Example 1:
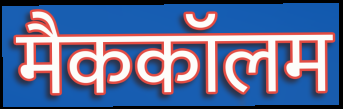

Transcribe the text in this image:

मैककॉलम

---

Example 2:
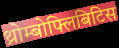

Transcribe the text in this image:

थ्रोम्बोफ्लिबिटिस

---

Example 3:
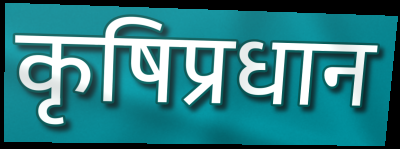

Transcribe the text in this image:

कृषिप्रधान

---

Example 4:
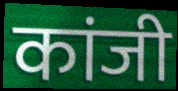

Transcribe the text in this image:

कांजी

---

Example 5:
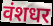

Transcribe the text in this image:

वंशधर